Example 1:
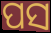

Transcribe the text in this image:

ପସ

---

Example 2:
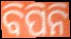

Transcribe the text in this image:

ବିପିନି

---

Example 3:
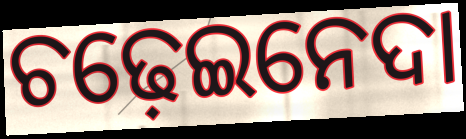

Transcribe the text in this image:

ଚଢ଼େଇନେଦା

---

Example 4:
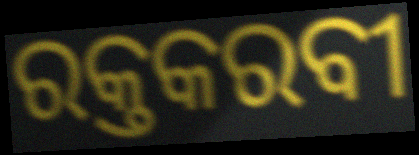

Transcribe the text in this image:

ରକ୍ତକରବୀ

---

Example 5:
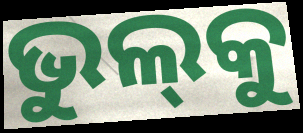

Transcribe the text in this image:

ଭୁଲ୍‍କୁ